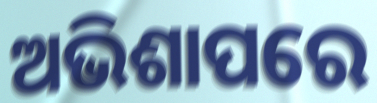
ଅଭିଶାପରେ